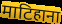
माटिहाना